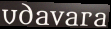
udavara